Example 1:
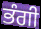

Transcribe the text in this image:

ਭੰਗੀ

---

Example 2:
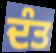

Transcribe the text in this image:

ਦੰਤ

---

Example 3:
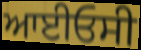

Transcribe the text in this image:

ਆਈਓਸੀ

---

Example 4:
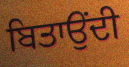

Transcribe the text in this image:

ਬਿਤਾਉਂਦੀ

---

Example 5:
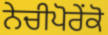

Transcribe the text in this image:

ਨੇਚੀਪੋਰੇਂਕੋ